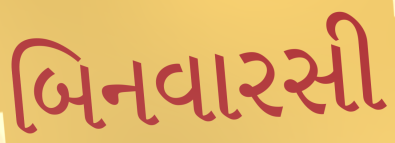
બિનવારસી